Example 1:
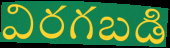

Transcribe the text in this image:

విరగబడి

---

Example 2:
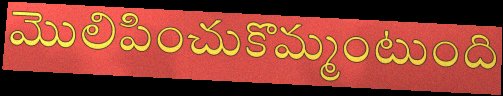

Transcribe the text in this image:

మొలిపించుకొమ్మంటుంది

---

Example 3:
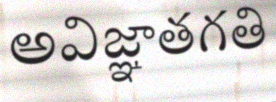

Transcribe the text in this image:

అవిజ్ఞాతగతి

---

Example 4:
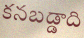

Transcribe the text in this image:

కనబడ్డాది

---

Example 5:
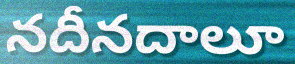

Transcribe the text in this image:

నదీనదాలూ